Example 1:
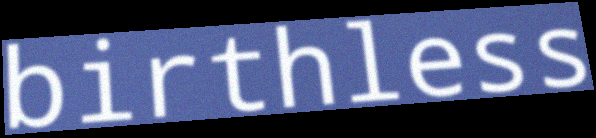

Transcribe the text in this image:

birthless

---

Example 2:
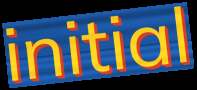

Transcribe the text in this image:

initial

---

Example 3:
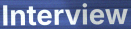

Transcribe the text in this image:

Interview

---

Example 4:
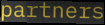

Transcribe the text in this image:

partners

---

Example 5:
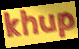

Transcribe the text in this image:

khup